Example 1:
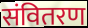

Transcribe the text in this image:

संवितरण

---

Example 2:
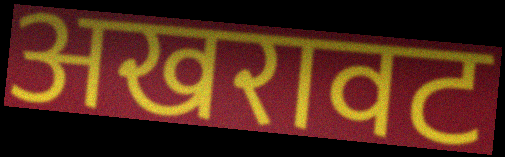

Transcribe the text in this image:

अखरावट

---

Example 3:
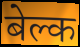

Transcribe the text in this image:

बेल्क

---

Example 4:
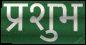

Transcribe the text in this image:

प्रशुभ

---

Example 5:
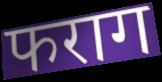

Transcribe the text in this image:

फराग